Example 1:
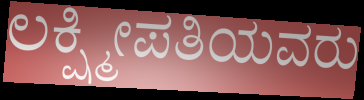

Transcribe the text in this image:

ಲಕ್ಷ್ಮೀಪತಿಯವರು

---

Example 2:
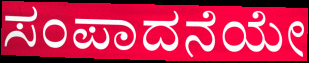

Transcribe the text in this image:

ಸಂಪಾದನೆಯೇ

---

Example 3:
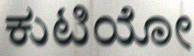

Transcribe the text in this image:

ಕುಟಿಯೋ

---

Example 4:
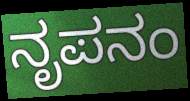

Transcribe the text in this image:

ನೃಪನಂ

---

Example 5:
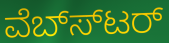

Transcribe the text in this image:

ವೆಬ್ಸ್‍ಟರ್